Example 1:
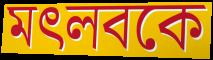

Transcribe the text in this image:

মৎলবকে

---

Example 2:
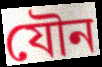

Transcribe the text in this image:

যৌন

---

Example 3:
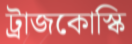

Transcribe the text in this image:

ট্রাজকোস্কি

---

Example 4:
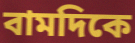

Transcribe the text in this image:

বামদিকে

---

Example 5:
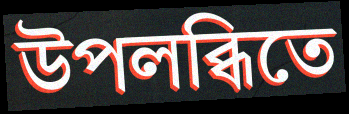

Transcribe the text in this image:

উপলব্ধিতে